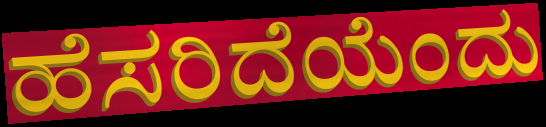
ಹೆಸರಿದೆಯೆಂದು